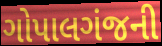
ગોપાલગંજની